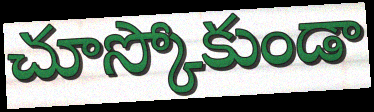
చూస్కోకుండా